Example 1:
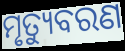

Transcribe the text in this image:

ମୃତ୍ୟୁବରଣ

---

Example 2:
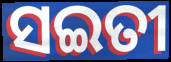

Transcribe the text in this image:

ସଇତୀ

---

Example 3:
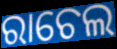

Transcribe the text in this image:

ରାଚେଲ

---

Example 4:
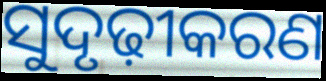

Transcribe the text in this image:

ସୁଦୃଢ଼ୀକରଣ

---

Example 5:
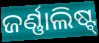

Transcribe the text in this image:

ଜର୍ଣ୍ଣାଲିଷ୍ଟ୍